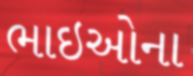
ભાઇઓના